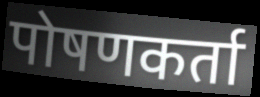
पोषणकर्ता